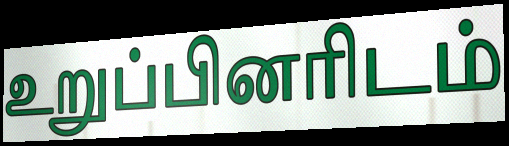
உறுப்பினரிடம்